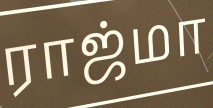
ராஜ்மா